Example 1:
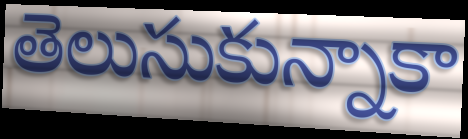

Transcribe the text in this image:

తెలుసుకున్నాకా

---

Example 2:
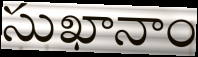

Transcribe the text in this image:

సుఖానాం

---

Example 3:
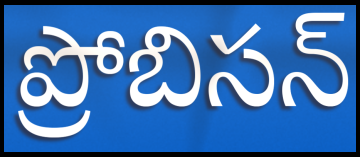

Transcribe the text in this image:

ప్రోబిసన్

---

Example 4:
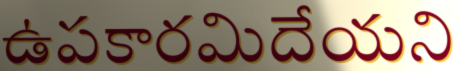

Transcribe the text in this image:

ఉపకారమిదేయని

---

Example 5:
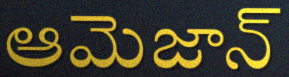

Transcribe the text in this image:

ఆమెజాన్